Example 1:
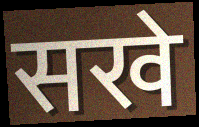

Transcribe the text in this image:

सखे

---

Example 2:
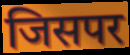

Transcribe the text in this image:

जिसपर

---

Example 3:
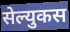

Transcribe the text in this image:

सेल्युकस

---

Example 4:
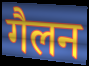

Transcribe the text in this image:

गैलन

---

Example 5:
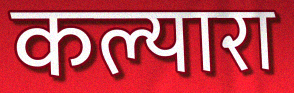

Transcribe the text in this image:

कल्यारा